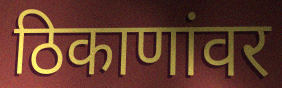
ठिकाणांवर